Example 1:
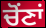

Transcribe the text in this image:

ਚੋਂਣਾਂ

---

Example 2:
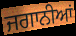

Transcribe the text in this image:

ਜਗਾਨੀਆਂ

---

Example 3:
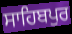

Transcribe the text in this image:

ਸਾਹਿਬਪੁਰ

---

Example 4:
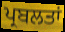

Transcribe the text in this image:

ਪ੍ਰਬਲਤਾਂ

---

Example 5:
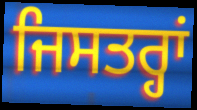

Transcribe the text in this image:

ਜਿਸਤਰ੍ਹਾਂ